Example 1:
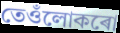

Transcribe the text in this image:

তেওঁলোকৰো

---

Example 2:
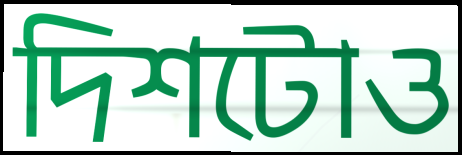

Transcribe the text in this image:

দিশটোও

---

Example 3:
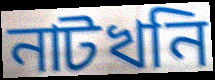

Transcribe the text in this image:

নাটখনি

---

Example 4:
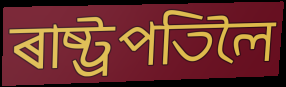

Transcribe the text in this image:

ৰাষ্ট্ৰপতিলৈ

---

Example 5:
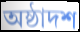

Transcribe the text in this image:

অষ্ঠাদশ